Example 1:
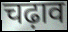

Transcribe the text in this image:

चढ़ाव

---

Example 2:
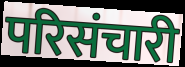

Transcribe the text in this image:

परिसंचारी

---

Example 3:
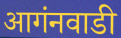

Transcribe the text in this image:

आगंनवाडी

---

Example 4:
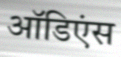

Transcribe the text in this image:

ऑडिएंस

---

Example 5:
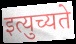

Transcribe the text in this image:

इत्युच्यते